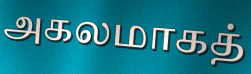
அகலமாகத்